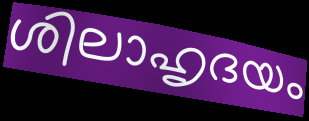
ശിലാഹൃദയം